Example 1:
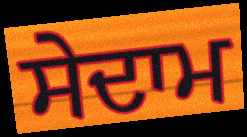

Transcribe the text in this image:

ਸੇਦਾਮ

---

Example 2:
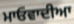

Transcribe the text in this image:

ਮਾਓਵਾਦੀਆ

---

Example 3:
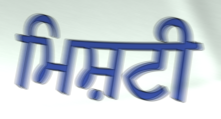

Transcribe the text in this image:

ਮਿਸ਼ਟੀ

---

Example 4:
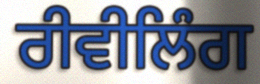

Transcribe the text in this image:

ਰੀਵੀਲਿੰਗ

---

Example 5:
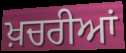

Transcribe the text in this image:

ਖ਼ਚਰੀਆਂ